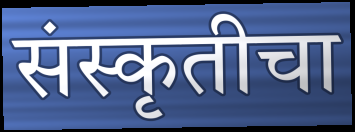
संस्कृतीचा